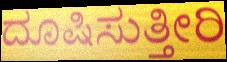
ದೂಷಿಸುತ್ತೀರಿ